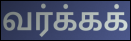
வர்க்கக்